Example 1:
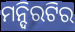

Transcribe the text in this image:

ମନ୍ଦିରଟିର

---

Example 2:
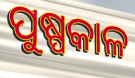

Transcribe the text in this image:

ପୁଷ୍ପକାଳ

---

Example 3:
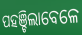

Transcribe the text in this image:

ପହଞ୍ଚିଲାବେଳେ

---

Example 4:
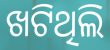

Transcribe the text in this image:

ଖଟିଥିଲି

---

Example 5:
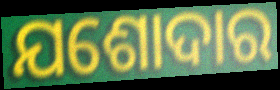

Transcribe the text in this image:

ଯଶୋଦାର